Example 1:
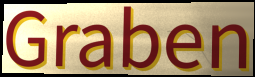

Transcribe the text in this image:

Graben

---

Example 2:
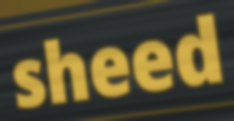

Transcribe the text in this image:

sheed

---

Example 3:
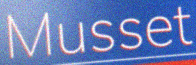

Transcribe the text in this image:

Musset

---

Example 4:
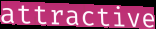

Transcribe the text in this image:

attractive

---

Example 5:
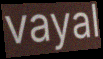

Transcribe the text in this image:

vayal